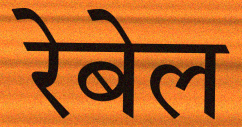
रेबेल